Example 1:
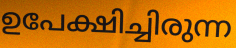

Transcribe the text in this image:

ഉപേക്ഷിച്ചിരുന്ന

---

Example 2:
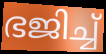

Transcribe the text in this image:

ഭജിച്ച്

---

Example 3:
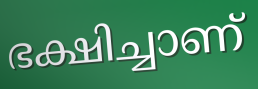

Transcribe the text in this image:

ഭക്ഷിച്ചാണ്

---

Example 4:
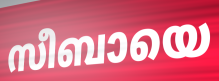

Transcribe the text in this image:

സീബായെ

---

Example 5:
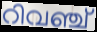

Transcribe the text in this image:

റിവഞ്ച്